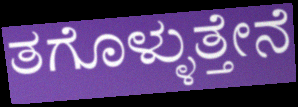
ತಗೊಳ್ಳುತ್ತೇನೆ